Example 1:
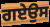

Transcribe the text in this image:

ਗਏਉਸ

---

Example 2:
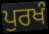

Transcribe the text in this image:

ਪੁਰਖੰ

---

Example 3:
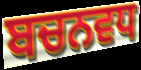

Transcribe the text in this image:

ਬਚਨਵਧ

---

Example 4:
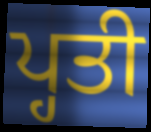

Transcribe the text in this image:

ਪ੍ਹਤੀ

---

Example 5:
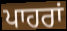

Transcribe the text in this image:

ਪਾਹਰਾਂ